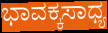
ಭಾವಕ್ಕಸಾಧ್ಯ